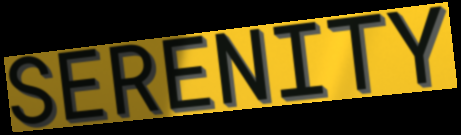
SERENITY